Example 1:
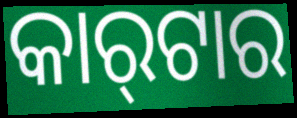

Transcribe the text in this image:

କାର୍‍ଟାର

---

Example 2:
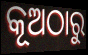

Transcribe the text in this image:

କୂଅଠାରୁ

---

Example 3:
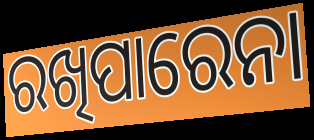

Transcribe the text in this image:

ରଖିପାରେନା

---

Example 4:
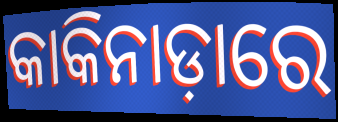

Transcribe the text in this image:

କାକିନାଡ଼ାରେ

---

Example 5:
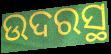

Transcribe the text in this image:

ଉଦରସ୍ଥ